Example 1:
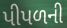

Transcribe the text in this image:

પીપળની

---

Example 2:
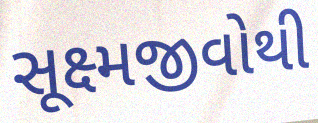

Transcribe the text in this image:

સૂક્ષ્મજીવોથી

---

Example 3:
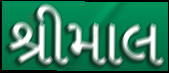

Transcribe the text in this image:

શ્રીમાલ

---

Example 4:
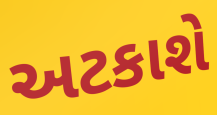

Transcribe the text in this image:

અટકાશે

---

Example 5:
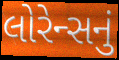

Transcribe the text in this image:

લોરેન્સનું